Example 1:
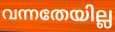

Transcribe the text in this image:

വന്നതേയില്ല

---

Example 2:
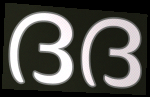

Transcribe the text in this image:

ദദ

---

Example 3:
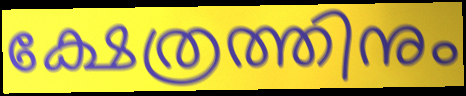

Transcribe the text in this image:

ക്ഷേത്രത്തിനും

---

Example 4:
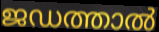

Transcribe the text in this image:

ജഡത്താൽ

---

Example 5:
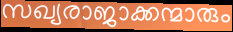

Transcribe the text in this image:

സഖ്യരാജാക്കന്മാരും